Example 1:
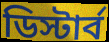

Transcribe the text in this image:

ডিস্টার্ব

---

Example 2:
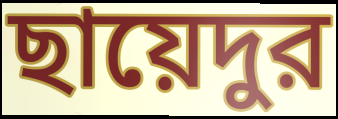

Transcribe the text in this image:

ছায়েদুর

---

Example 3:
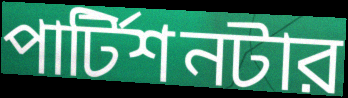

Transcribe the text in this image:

পার্টিশনটার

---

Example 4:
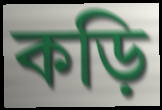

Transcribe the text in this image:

কড়ি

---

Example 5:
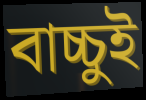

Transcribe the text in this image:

বাচ্চুই